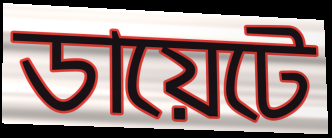
ডায়েটে